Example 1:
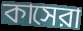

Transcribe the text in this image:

কাসেরা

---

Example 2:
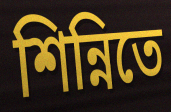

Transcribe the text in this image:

শিন্নিতে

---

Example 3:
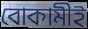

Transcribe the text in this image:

বোকামীই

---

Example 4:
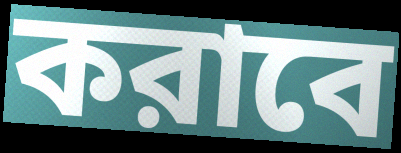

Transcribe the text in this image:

করাবে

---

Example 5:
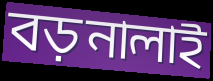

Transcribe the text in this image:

বড়নালাই